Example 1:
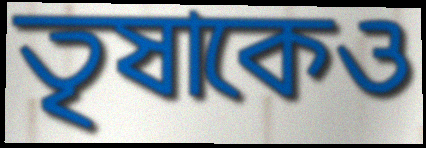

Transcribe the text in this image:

তৃষাকেও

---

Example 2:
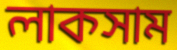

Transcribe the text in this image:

লাকসাম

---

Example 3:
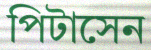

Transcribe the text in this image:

পিটাসেন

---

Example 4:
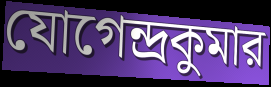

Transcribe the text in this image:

যোগেন্দ্রকুমার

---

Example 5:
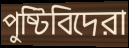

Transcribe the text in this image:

পুষ্টিবিদেরা